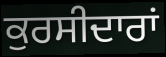
ਕੁਰਸੀਦਾਰਾਂ